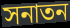
সনাতন